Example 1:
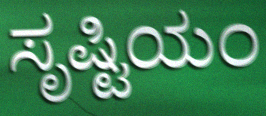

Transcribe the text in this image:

ಸೃಷ್ಟಿಯಂ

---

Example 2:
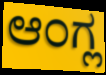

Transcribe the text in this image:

ಆಂಗ್ಲ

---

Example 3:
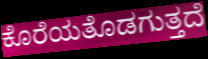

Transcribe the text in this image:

ಕೊರೆಯತೊಡಗುತ್ತದೆ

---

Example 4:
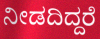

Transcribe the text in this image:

ನೀಡದಿದ್ದರೆ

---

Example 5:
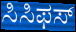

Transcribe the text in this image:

ಸಿಸಿಫಸ್